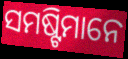
ସମଷ୍ଟିମାନେ